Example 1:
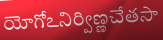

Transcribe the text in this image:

యోగోఽనిర్విణ్ణచేతసా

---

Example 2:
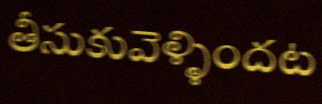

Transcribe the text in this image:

తీసుకువెళ్ళిందట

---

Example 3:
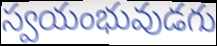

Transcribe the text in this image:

స్వయంభువుడగు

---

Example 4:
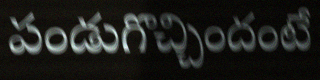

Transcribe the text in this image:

పండుగొచ్చిందంటే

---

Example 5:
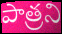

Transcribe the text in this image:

పాత్రని